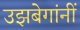
उझबेगांनीं